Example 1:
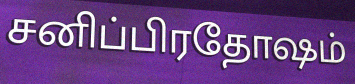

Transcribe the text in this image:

சனிப்பிரதோஷம்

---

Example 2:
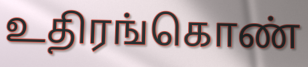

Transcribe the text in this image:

உதிரங்கொண்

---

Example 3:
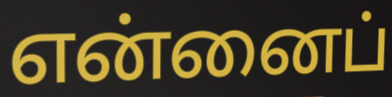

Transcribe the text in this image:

என்னைப்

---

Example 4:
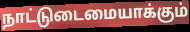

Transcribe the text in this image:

நாட்டுடைமையாக்கும்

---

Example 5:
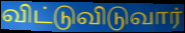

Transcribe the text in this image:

விட்டுவிடுவார்